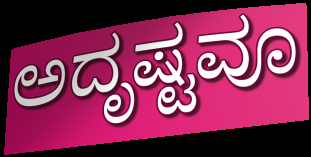
ಅದೃಷ್ಟವೂ